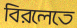
বিরলেতে